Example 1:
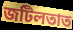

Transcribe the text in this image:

জটিলতাত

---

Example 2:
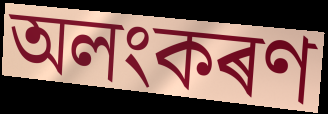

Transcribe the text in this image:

অলংকৰণ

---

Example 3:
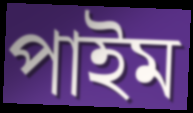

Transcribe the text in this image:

পাইম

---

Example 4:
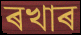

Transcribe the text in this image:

ৰখাৰ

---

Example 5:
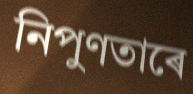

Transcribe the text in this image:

নিপুণতাৰে